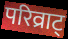
परिव्राट्